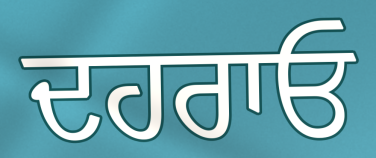
ਦਹਰਾਓ